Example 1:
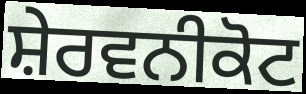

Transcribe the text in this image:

ਸ਼ੇਰਵਨੀਕੋਟ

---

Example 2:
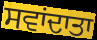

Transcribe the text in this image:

ਸਵਾਂਦਾਤਾ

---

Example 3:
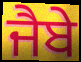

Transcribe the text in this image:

ਜੈਬੇ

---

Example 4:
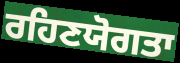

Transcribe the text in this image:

ਰਹਿਣਯੋਗਤਾ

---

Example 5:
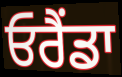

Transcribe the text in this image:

ਓਰੈਂਡਾ